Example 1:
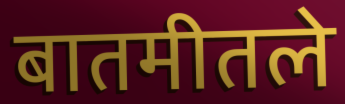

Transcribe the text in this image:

बातमीतले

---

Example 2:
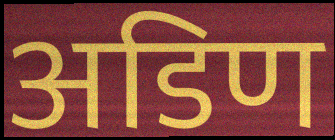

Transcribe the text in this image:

अडिण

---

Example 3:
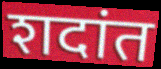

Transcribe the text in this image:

शदांत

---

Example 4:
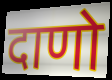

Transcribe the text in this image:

दाणो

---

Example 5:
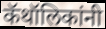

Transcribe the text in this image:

कॅथॉलिकांनी